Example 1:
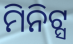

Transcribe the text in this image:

ମିନିଟ୍ସ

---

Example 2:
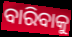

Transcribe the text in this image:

ବାରିବାକୁ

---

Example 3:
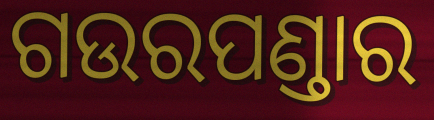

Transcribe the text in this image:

ଗଉରପଣ୍ଡାର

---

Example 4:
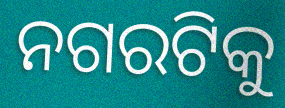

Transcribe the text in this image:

ନଗରଟିକୁ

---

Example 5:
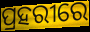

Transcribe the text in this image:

ପ୍ରହରୀରେ